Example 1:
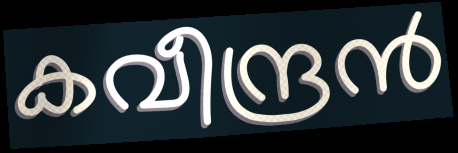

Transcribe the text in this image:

കവീന്ദ്രൻ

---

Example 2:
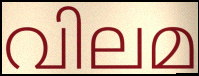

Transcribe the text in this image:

വിലമ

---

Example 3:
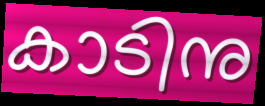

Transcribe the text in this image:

കാടിനു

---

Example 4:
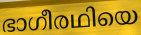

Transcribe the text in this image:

ഭാഗീരഥിയെ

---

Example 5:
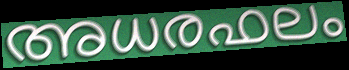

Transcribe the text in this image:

അധരഫലം